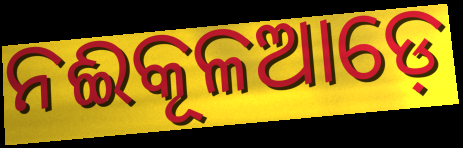
ନଈକୂଳଆଡ଼େ